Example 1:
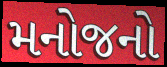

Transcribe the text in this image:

મનોજનો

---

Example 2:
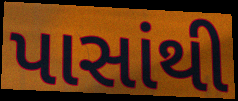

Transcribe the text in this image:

પાસાંથી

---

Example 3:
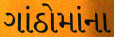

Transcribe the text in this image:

ગાંઠોમાંના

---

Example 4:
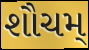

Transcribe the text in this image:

શૌચમ્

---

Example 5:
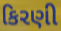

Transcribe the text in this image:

કિરણી